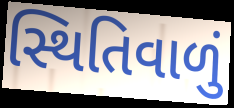
સ્થિતિવાળું